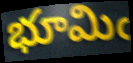
భూమిఁ